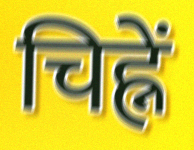
चिह्नें